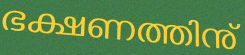
ഭക്ഷണത്തിനു്